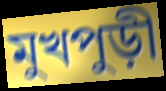
মুখপুড়ী